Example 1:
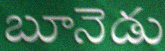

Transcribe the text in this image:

బూనెడు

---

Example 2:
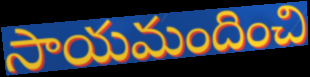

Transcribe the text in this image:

సాయమందించి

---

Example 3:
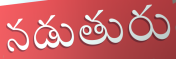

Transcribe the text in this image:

నడుతురు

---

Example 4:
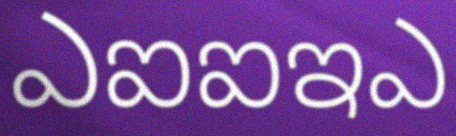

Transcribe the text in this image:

ఎఐఐఇఎ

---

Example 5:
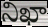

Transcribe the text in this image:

నిఖా